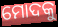
ମୋଦକୁ